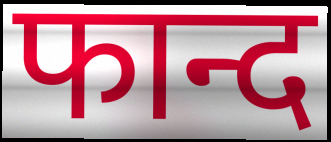
फान्द